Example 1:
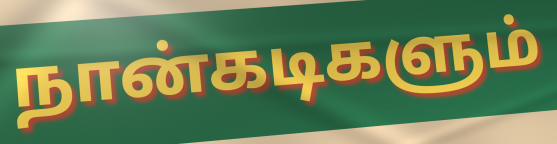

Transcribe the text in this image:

நான்கடிகளும்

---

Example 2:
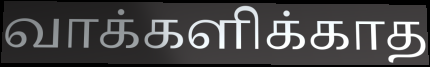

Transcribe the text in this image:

வாக்களிக்காத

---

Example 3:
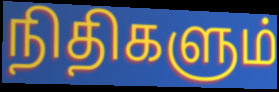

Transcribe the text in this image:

நிதிகளும்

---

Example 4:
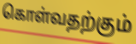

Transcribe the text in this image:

கொள்வதற்கும்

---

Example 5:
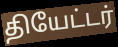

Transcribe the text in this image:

தியேட்டர்